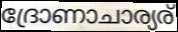
ദ്രോണാചാര്യര്